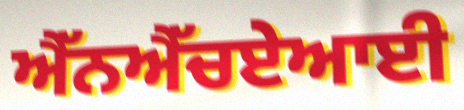
ਐੱਨਐੱਚਏਆਈ